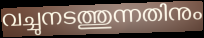
വച്ചുനടത്തുന്നതിനും